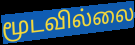
மூடவில்லை